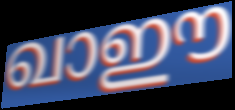
ഖാഈ